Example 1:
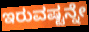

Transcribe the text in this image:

ಇರುವಷ್ಟನ್ನೇ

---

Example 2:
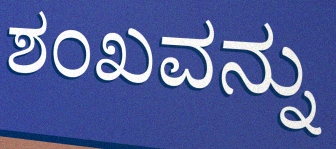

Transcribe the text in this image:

ಶಂಖವನ್ನು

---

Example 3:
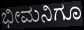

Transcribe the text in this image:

ಭೀಮನಿಗೂ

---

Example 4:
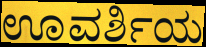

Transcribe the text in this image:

ಊವರ್ಶಿಯ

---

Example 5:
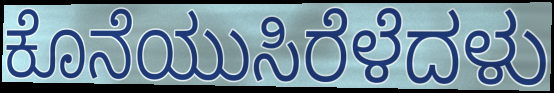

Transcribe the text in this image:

ಕೊನೆಯುಸಿರೆಳೆದಳು